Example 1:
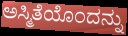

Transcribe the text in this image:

ಅಸ್ಮಿತೆಯೊಂದನ್ನು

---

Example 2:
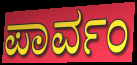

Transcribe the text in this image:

ಪಾರ್ವಂ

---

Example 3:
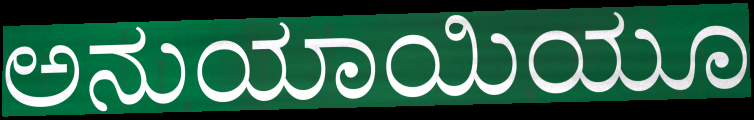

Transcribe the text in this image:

ಅನುಯಾಯಿಯೂ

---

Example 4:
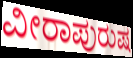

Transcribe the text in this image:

ವೀರಾಪುರುಷ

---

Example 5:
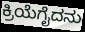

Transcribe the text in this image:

ಕ್ರಿಯೆಗೈದನು